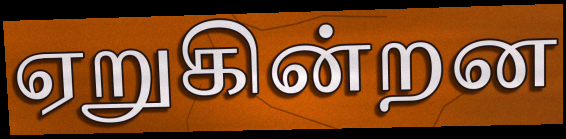
ஏறுகின்றன